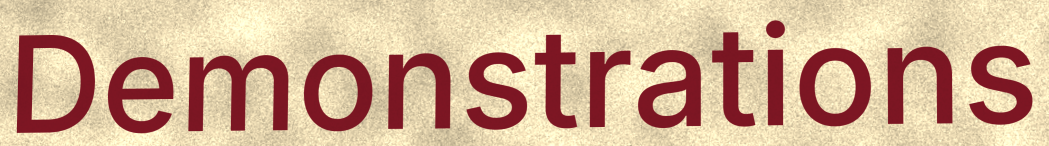
Demonstrations